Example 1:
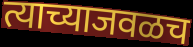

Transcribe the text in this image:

त्याच्याजवळच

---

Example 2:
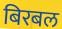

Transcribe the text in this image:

बिरबल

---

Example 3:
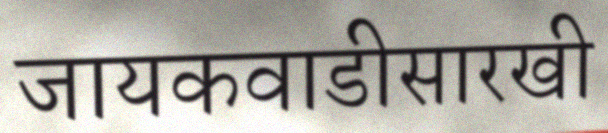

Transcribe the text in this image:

जायकवाडीसारखी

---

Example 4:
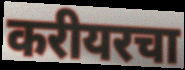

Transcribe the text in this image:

करीयरचा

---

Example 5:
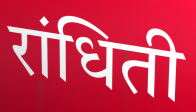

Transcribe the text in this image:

रांधिती